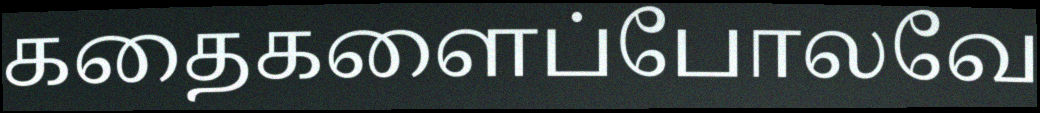
கதைகளைப்போலவே